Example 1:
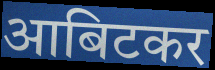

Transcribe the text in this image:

आबिटकर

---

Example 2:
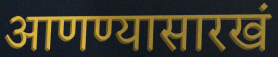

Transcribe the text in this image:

आणण्यासारखं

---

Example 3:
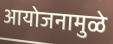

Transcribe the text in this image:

आयोजनामुळे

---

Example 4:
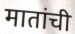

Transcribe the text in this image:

मातांची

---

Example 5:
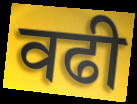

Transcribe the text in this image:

वढी